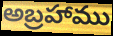
అబ్రహాము